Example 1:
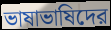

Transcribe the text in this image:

ভাষাভাষিদের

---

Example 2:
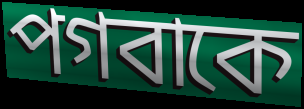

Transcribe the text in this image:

পগবাকে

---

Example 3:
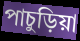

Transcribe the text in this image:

পাচুড়িয়া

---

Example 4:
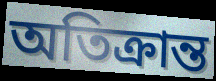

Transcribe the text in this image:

অতিক্রান্ত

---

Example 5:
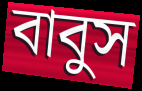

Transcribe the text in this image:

বাবুস